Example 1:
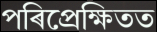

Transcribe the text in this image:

পৰিপ্ৰেক্ষিতত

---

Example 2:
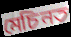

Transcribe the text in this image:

মেচিনত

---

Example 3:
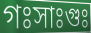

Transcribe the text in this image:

গঃসাঃগুঃ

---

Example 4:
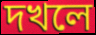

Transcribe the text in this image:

দখলে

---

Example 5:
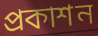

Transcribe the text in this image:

প্ৰকাশন